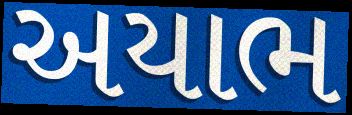
અયાભ